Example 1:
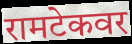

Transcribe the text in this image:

रामटेकवर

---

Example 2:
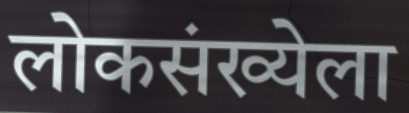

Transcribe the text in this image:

लोकसंख्येला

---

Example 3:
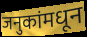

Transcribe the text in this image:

जनुकांमधून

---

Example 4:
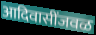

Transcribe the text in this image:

आदिवासींजवळ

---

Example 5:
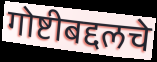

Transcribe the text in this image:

गोष्टीबद्दलचे